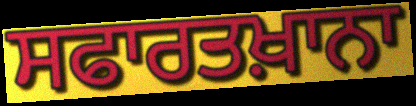
ਸਫਾਰਤਖ਼ਾਨਾ